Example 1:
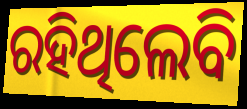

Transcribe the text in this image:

ରହିଥିଲେବି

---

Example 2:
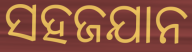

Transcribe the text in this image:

ସହଜଯାନ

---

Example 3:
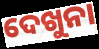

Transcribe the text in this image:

ଦେଖୁନା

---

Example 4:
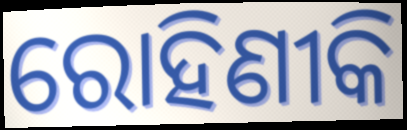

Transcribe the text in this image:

ରୋହିଣୀକି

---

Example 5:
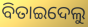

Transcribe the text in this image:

ବିତାଇଦେଲୁ